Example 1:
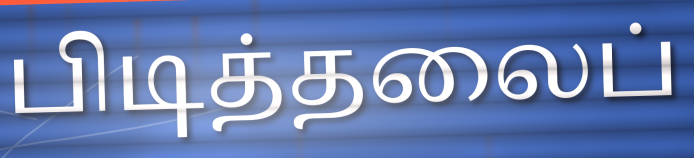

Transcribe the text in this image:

பிடித்தலைப்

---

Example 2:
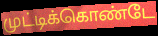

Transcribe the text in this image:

முட்டிக்கொண்டே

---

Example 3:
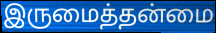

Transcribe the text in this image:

இருமைத்தன்மை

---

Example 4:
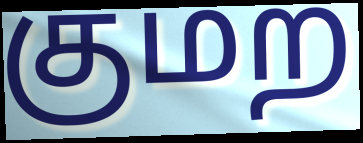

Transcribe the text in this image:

குமற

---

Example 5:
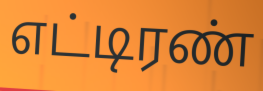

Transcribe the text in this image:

எட்டிரண்